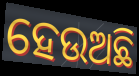
ହେଉଅଛି